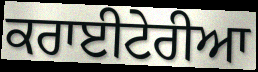
ਕਰਾਈਟੇਰੀਆ